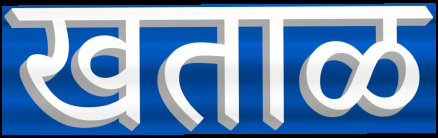
खताळ